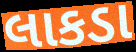
લાકડા